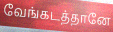
வேங்கடத்தானே